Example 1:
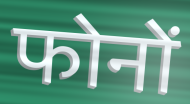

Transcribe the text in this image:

फोनों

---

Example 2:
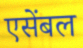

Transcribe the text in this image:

एसेंबल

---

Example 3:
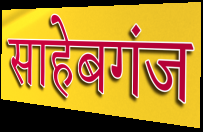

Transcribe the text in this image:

साहेबगंज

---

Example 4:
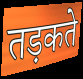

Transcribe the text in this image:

तड़कते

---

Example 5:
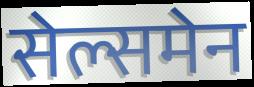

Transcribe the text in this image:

सेल्समेन